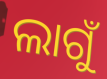
ଲାଗୁଁ